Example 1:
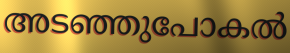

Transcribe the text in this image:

അടഞ്ഞുപോകൽ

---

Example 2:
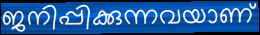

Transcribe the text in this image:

ജനിപ്പിക്കുന്നവയാണ്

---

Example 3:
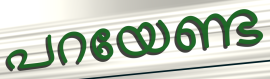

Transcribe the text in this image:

പറയേണ്ട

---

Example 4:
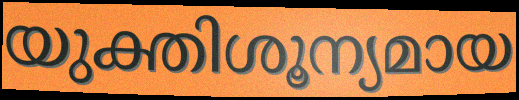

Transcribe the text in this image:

യുക്തിശൂന്യമായ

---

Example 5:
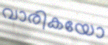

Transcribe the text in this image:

വാരികയോ